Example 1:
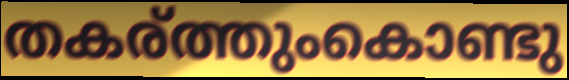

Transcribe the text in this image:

തകര്ത്തുംകൊണ്ടു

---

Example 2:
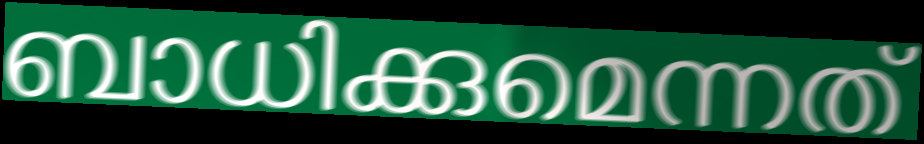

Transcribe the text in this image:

ബാധിക്കുമെന്നത്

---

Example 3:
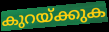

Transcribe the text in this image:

കുറയ്ക്കുക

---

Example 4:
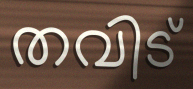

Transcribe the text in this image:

തവിട്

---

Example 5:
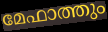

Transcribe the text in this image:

മേഫാത്തും